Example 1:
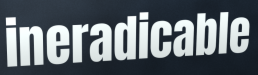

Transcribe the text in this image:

ineradicable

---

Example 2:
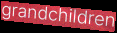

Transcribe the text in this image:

grandchildren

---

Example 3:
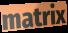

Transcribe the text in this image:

matrix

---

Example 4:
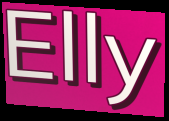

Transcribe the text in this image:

Elly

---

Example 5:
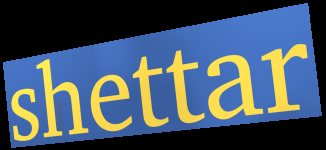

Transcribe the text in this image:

shettar